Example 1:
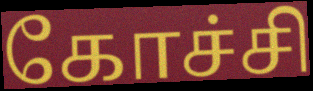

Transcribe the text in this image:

கோச்சி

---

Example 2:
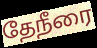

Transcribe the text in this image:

தேநீரை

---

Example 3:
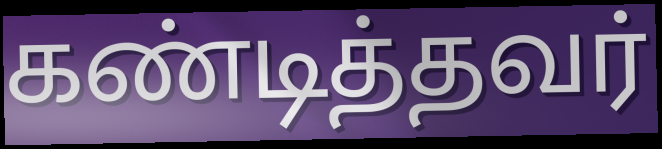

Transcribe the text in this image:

கண்டித்தவர்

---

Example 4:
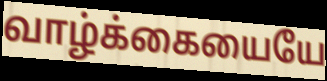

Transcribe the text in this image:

வாழ்க்கையையே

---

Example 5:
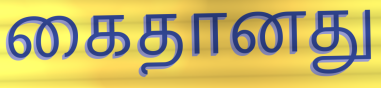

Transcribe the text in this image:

கைதானது